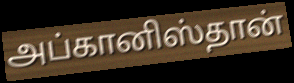
அப்கானிஸ்தான்